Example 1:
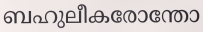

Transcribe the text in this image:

ബഹുലീകരോന്തോ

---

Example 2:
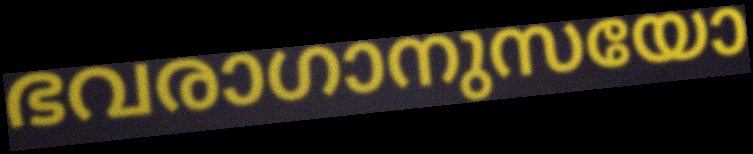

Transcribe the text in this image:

ഭവരാഗാനുസയോ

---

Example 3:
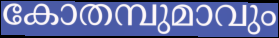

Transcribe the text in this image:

കോതമ്പുമാവും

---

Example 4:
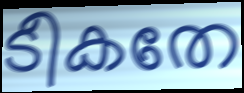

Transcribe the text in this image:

ടീകതേ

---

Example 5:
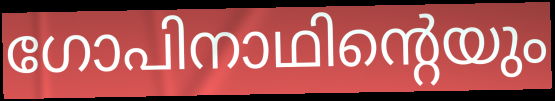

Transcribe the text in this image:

ഗോപിനാഥിന്റെയും